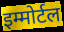
इम्मोर्टल